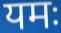
यमः